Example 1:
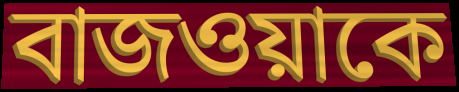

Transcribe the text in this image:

বাজওয়াকে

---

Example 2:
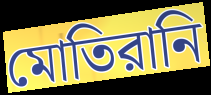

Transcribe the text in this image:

মোতিরানি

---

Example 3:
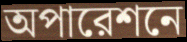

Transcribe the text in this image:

অপারেশনে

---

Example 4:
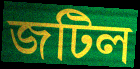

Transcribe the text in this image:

জটিল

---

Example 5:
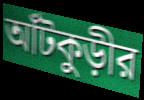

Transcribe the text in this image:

আঁটকুড়ীর